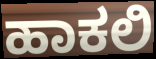
ಹಾಕಲಿ